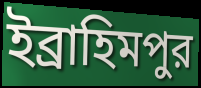
ইব্রাহিমপুর